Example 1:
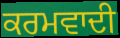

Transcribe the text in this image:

ਕਰਮਵਾਦੀ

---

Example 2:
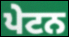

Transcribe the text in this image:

ਪੇਟਨ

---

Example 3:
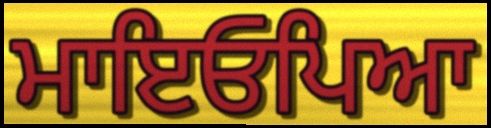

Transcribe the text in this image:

ਮਾਇਓਪਿਆ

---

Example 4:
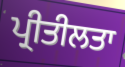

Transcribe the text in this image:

ਪ੍ਰੀਤੀਲਤਾ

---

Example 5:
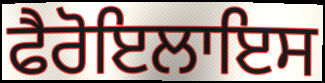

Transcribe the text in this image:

ਫੈਰੋਇਲਾਇਸ